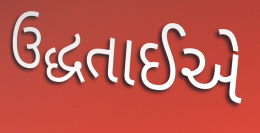
ઉદ્ધતાઈએ